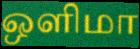
ஒளிமா